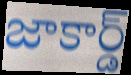
జాకార్డ్